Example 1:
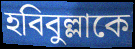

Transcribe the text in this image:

হবিবুল্লাকে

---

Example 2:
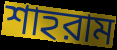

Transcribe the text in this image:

শাহরাম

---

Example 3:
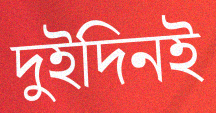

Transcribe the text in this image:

দুইদিনই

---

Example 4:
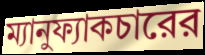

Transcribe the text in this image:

ম্যানুফ্যাকচারের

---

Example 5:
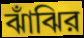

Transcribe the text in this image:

ঝাঁঝির